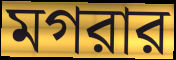
মগরার